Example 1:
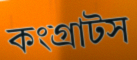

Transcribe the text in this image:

কংগ্রাটস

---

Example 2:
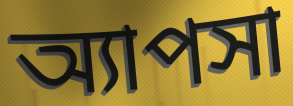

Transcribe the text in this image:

অ্যাপসা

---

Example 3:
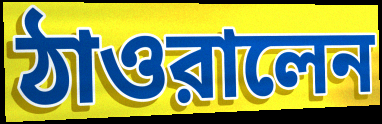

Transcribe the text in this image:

ঠাওরালেন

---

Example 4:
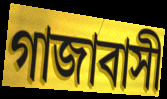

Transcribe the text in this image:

গাজাবাসী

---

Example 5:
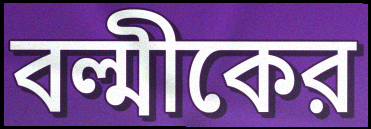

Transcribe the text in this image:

বল্মীকের